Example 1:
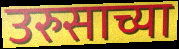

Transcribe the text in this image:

उरुसाच्या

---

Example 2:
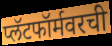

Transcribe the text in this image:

प्लॅटफॉर्मवरची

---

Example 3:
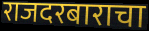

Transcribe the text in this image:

राजदरबाराचा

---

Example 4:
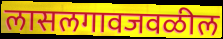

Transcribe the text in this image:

लासलगावजवळील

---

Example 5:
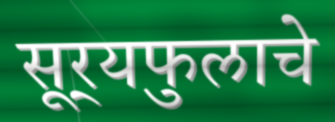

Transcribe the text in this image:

सूर्यफुलाचे